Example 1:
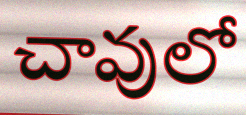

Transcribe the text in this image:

చావులో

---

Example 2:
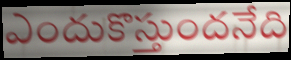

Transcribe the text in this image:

ఎందుకొస్తుందనేది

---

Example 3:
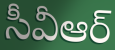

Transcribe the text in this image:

సీవీఆర్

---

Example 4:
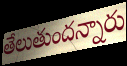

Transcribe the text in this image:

తేలుతుందన్నారు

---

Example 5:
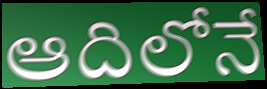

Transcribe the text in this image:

ఆదిలోనే